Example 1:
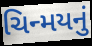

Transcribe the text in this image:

ચિન્મયનું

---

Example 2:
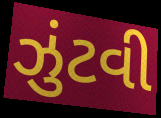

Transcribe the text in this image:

ઝુંટવી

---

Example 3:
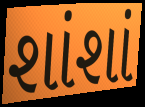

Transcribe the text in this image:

શાંશાં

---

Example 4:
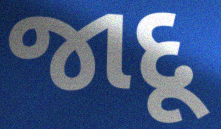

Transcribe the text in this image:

જાદૂ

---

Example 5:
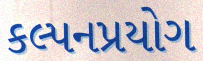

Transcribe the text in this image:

કલ્પનપ્રયોગ